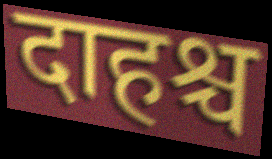
दाहश्च